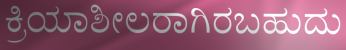
ಕ್ರಿಯಾಶೀಲರಾಗಿರಬಹುದು